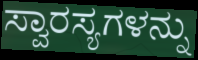
ಸ್ವಾರಸ್ಯಗಳನ್ನು